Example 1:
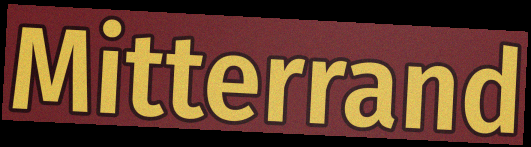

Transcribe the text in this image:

Mitterrand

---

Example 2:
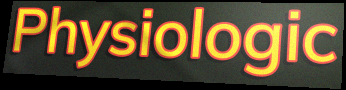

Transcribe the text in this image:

Physiologic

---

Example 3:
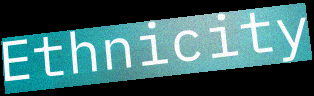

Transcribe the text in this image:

Ethnicity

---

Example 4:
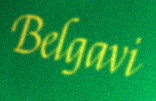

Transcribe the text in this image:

Belgavi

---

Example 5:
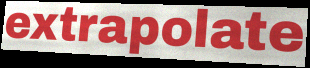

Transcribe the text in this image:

extrapolate